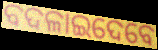
ବଦଳାଇଦେବେ